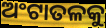
ଅଂଟାତଳକୁ